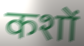
कशों